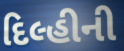
દિલ્હીની